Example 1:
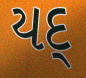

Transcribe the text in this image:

યદ્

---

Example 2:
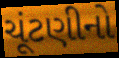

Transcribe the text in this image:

ચૂંટણીનો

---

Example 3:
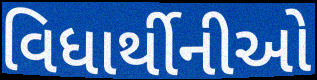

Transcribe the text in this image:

વિધાર્થીનીઓ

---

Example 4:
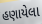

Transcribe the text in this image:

હણાયેલા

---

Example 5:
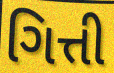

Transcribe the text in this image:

ગિત્તી